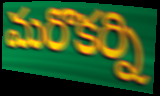
మరొకర్ని